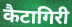
कैटागिरी